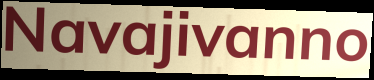
Navajivanno